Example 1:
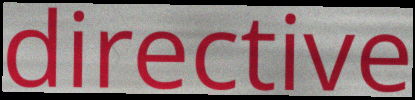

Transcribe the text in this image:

directive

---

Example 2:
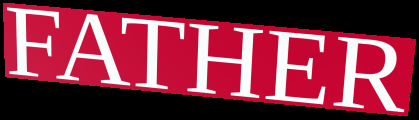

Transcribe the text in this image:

FATHER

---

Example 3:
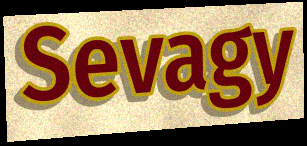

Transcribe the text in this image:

Sevagy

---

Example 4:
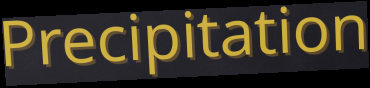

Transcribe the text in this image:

Precipitation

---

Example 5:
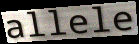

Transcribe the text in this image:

allele